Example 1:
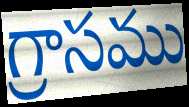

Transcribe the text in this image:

గ్రాసము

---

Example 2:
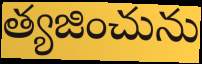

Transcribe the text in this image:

త్యజించును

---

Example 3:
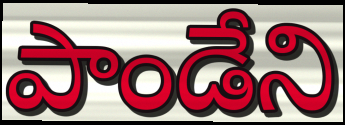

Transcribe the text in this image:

పాండేని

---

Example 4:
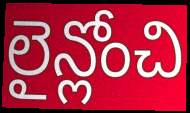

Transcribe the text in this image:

లైన్లోంచి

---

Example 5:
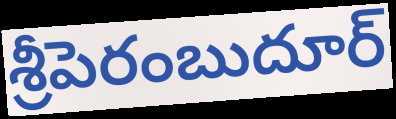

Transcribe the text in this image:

శ్రీపెరంబుదూర్